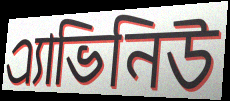
এ্যাভিনিউ